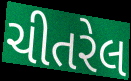
ચીતરેલ